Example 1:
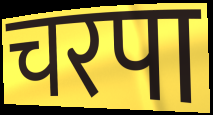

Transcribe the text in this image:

चरपा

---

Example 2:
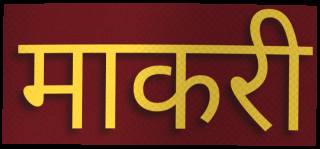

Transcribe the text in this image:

माकरी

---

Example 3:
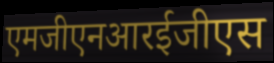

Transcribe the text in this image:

एमजीएनआरईजीएस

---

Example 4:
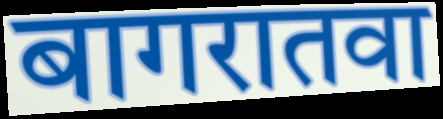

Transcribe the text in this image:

बागरातवा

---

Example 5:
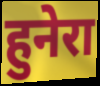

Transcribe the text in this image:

हुनेरा